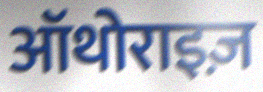
ऑथोराइज़